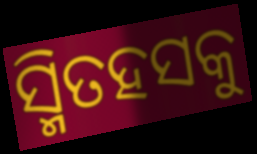
ସ୍ମିତହସକୁ